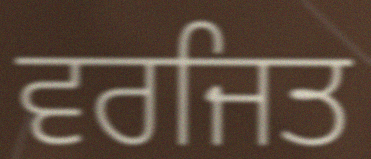
ਵਰਜਿਤ